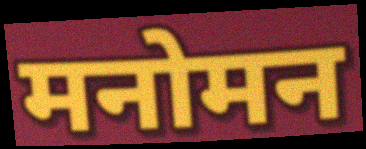
मनोमन